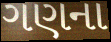
ગણના